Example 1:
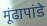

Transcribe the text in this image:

मूंढापांडे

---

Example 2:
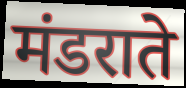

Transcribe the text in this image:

मंडराते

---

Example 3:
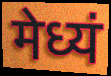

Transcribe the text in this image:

मेध्यं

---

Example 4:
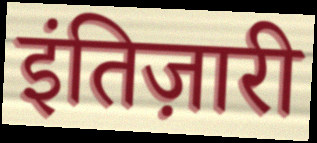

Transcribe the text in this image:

इंतिज़ारी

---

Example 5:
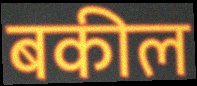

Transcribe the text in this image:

बकील